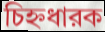
চিহ্নধারক